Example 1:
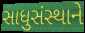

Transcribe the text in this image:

સાધુસંસ્થાને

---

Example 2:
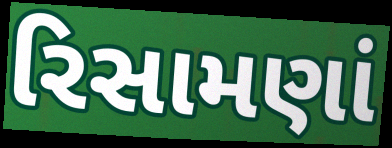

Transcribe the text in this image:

રિસામણાં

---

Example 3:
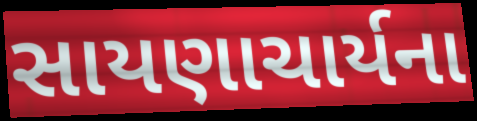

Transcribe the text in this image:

સાયણાચાર્યના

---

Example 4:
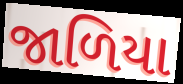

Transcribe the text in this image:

જાળિયા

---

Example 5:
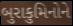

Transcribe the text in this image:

બુરાકુમિનોને